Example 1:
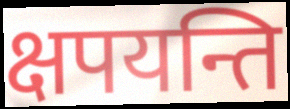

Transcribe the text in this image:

क्षपयन्ति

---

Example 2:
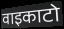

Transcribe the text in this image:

वाइकाटो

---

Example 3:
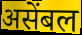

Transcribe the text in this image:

असेंबल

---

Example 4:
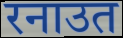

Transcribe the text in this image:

रनाउत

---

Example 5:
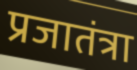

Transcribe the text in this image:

प्रजातंत्रा